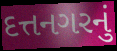
દત્તનગરનું